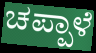
ಚಪ್ಪಾಳೆ